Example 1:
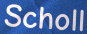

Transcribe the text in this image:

Scholl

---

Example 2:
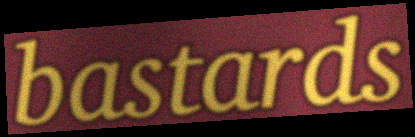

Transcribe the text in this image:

bastards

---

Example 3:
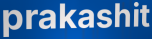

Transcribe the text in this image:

prakashit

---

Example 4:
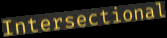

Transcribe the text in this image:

Intersectional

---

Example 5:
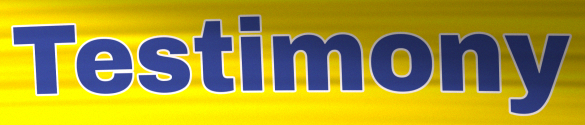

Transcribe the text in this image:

Testimony